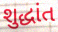
શુદ્ધાંત